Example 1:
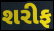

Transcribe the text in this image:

શરીફ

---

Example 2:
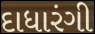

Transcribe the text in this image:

દાધારંગી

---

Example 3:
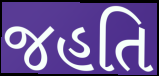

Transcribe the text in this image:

જહતિ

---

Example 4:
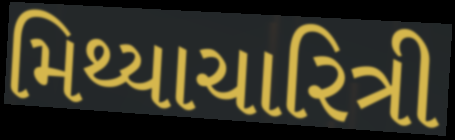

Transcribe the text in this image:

મિથ્યાચારિત્રી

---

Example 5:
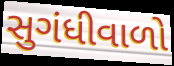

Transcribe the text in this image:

સુગંધીવાળો